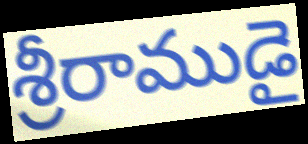
శ్రీరాముడై